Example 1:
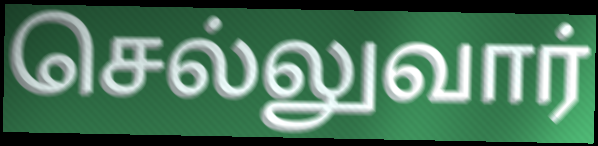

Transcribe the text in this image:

செல்லுவார்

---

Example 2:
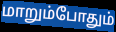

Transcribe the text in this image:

மாறும்போதும்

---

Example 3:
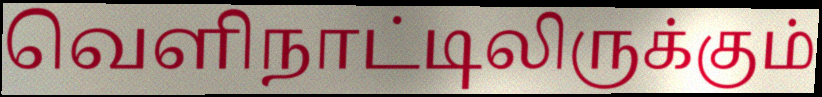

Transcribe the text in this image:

வெளிநாட்டிலிருக்கும்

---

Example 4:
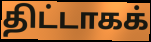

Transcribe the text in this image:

திட்டாகக்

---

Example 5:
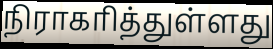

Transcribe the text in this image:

நிராகரித்துள்ளது